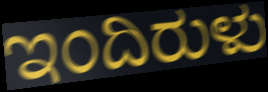
ಇಂದಿರುಳು